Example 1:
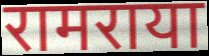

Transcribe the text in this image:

रामराया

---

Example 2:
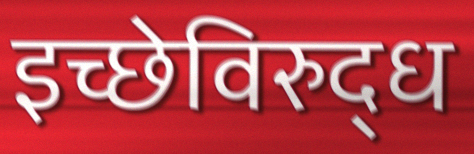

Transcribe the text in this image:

इच्छेविरुद्ध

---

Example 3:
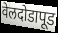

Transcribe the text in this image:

वेलदोडापूड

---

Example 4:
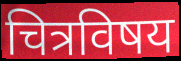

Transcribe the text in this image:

चित्रविषय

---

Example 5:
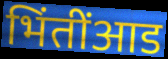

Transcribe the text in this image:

भिंतींआड